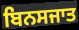
ਬਿਨਸਜਾਤ